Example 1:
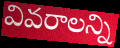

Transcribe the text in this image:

వివరాలన్ని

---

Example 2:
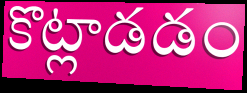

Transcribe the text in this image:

కొట్లాడడం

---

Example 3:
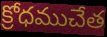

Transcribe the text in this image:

క్రోధముచేత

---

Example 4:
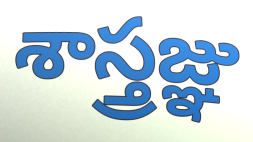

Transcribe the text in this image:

శాస్త్రజ్ఞు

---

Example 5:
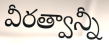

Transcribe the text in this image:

వీరత్వాన్నీ